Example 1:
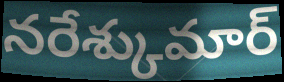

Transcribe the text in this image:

నరేశ్కుమార్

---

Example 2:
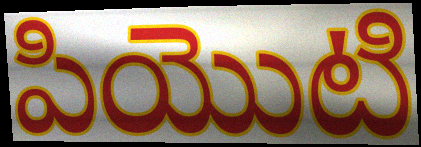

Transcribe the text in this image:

పియొటి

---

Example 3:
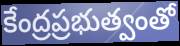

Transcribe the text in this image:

కేంద్రప్రభుత్వంతో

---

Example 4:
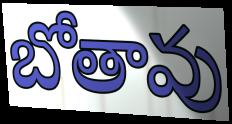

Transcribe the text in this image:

బోతావు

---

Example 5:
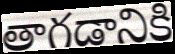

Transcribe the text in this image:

తాగడానికి